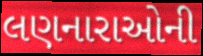
લણનારાઓની